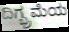
ದಿಗ್ಭ್ರಮೆಯ